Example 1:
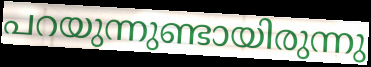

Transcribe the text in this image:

പറയുന്നുണ്ടായിരുന്നു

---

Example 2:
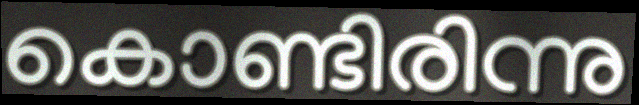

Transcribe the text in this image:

കൊണ്ടിരിന്നു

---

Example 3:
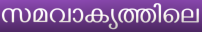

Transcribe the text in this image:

സമവാക്യത്തിലെ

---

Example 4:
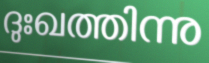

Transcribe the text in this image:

ദുഃഖത്തിന്നു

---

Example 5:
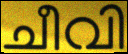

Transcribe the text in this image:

ചീവി